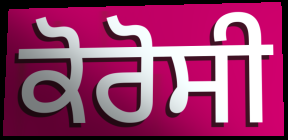
ਕੋਰੋਸੀ